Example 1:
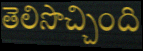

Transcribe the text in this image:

తెలిసొచ్చింది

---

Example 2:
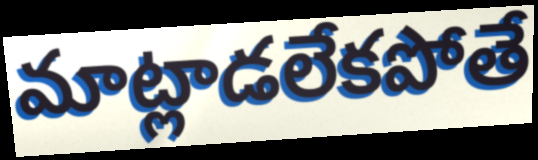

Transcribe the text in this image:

మాట్లాడలేకపోతే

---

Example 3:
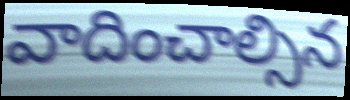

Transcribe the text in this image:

వాదించాల్సిన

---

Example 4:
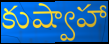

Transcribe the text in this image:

కుష్వాహా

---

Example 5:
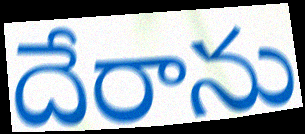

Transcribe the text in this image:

దేరాను